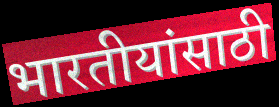
भारतीयांसाठी